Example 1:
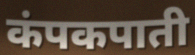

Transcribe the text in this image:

कंपकपाती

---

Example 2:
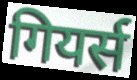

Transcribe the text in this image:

गियर्स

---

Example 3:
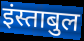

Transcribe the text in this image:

इंस्ताबुल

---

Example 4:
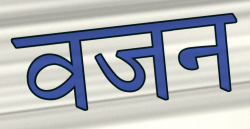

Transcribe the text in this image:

वजन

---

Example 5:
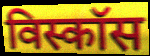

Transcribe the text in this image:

विस्कॉस